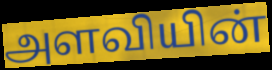
அளவியின்